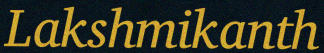
Lakshmikanth